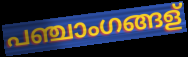
പഞ്ചാംഗങ്ങള്